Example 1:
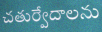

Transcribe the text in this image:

చతుర్వేదాలను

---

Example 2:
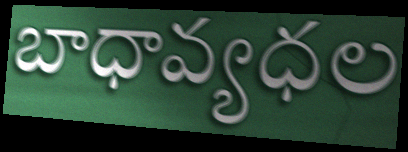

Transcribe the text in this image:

బాధావ్యధల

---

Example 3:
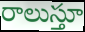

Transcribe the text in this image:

రాలుస్తూ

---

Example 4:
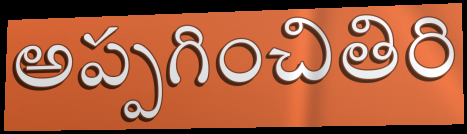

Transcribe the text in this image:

అప్పగించితిరి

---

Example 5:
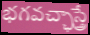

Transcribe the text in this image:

భగవచ్ఛాస్త్రే